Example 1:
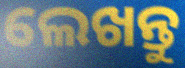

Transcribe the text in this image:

ଲେଖନ୍ତୁ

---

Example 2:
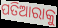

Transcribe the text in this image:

ପତିଆରାକୁ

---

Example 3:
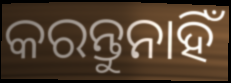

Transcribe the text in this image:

କରନ୍ତୁନାହିଁ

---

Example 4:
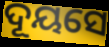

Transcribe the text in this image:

ଦୂୟସେ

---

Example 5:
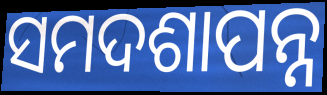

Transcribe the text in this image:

ସମଦଶାପନ୍ନ